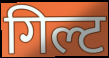
गिल्ट